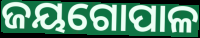
ଜୟଗୋପାଳ